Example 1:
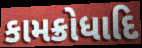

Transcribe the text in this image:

કામક્રોધાદિ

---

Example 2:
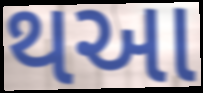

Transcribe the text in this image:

થઆ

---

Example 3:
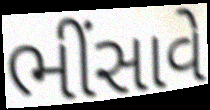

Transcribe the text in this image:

ભીંસાવે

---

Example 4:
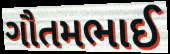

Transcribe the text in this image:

ગૌતમભાઈ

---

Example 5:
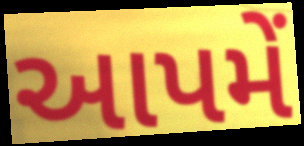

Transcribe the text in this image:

આપમેં